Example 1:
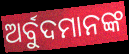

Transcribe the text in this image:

ଅର୍ବୁଦମାନଙ୍କ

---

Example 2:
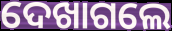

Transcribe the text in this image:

ଦେଖାଗଲେ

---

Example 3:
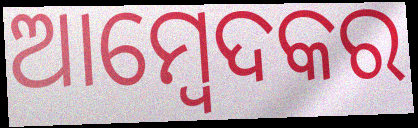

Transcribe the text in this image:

ଆମ୍ବେଦକର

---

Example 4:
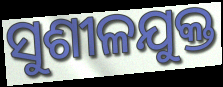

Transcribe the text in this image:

ସୁଶୀଳଯୁକ୍ତ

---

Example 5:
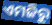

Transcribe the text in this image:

ଏମଜିରୁ